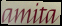
amita